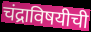
चंद्राविषयीची